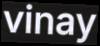
vinay